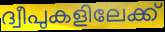
ദ്വീപുകളിലേക്ക്